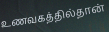
உணவகத்தில்தான்